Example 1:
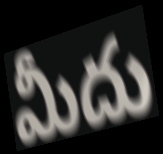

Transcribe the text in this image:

మీదు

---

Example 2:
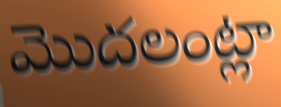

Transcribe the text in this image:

మొదలంట్లా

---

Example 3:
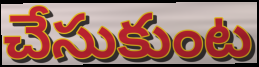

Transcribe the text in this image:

చేసుకుంట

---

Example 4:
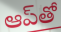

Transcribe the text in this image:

ఆప్‌తో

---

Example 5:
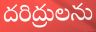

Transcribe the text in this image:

దరిద్రులను